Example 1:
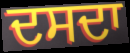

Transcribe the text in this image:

ਦਸਦਾ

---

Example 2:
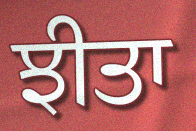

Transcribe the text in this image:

ਝੀਤਾ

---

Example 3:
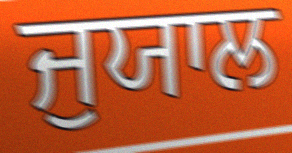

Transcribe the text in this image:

ਜੁਯਾਲ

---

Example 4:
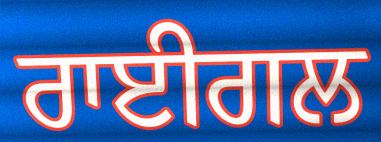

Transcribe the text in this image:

ਰਾਈਗਲ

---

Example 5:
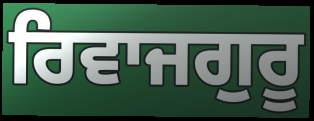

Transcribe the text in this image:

ਰਿਵਾਜਗੁਰੂ